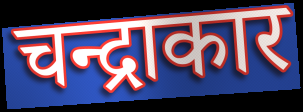
चन्द्राकार